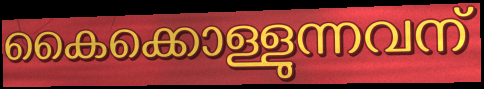
കൈക്കൊള്ളുന്നവന്